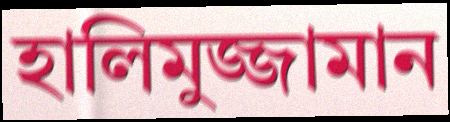
হালিমুজ্জামান